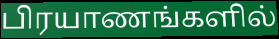
பிரயாணங்களில்